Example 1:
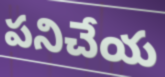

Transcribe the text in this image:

పనిచేయ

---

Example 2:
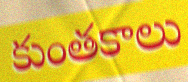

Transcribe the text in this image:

కుంతకాలు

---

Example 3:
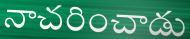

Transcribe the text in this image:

నాచరించాడు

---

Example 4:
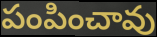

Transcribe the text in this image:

పంపించావు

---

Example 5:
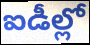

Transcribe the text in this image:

ఐడీల్లో